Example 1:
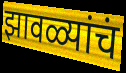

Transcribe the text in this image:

झावळ्यांचं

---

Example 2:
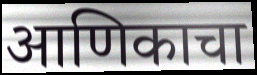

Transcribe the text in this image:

आणिकाचा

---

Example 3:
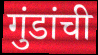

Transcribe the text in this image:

गुंडांची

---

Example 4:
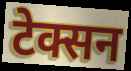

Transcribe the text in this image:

टेक्सन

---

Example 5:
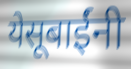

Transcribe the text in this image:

येसूबाईंनी